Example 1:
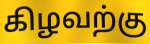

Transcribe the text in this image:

கிழவற்கு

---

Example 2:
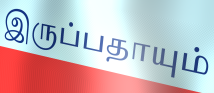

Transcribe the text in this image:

இருப்பதாயும்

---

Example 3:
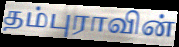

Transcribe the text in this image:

தம்புராவின்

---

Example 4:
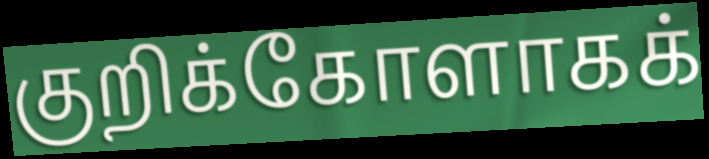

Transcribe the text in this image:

குறிக்கோளாகக்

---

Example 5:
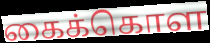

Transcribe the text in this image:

கைக்கொள